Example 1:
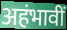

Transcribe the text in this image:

अहंभावीं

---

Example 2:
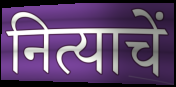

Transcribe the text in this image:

नित्याचें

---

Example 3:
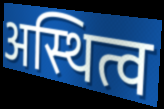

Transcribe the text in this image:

अस्थित्व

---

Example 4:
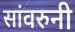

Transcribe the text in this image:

सांवरुनी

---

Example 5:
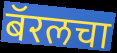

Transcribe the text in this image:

बॅरलचा